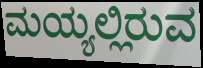
ಮಯ್ಯಲ್ಲಿರುವ